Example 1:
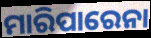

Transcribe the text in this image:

ମାରିପାରେନା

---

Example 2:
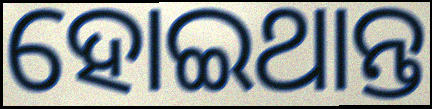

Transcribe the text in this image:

ହୋଇଥାନ୍ତ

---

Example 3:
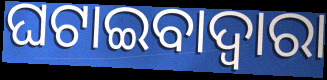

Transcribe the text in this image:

ଘଟାଇବାଦ୍ୱାରା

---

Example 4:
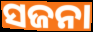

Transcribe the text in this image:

ସଜନା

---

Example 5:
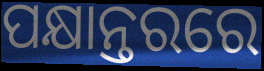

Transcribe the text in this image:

ପକ୍ଷାନ୍ତରରେ